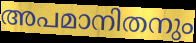
അപമാനിതനും